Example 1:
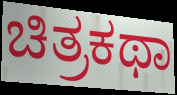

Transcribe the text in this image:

ಚಿತ್ರಕಥಾ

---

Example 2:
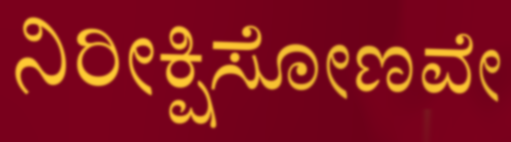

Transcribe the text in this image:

ನಿರೀಕ್ಷಿಸೋಣವೇ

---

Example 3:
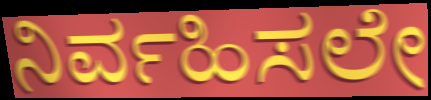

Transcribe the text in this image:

ನಿರ್ವಹಿಸಲೇ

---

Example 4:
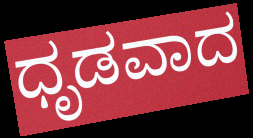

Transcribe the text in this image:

ಧೃಡವಾದ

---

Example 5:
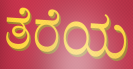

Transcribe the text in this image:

ತೆರೆಯ